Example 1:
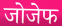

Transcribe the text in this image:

जोजेफ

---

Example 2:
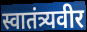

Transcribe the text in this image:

स्वातंत्र्यवीर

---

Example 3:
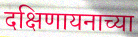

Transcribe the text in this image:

दक्षिणायनाच्या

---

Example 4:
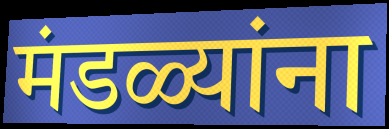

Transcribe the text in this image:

मंडळ्यांना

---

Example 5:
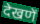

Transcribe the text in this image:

देखणें